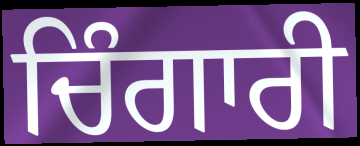
ਚਿੰਗਾਰੀ